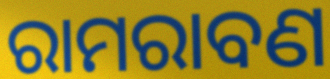
ରାମରାବଣ